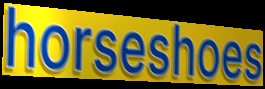
horseshoes